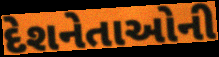
દેશનેતાઓની